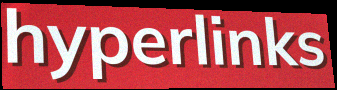
hyperlinks